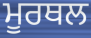
ਮੂਰਥਲ